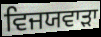
ਵਿਜਯਵਾੜਾ